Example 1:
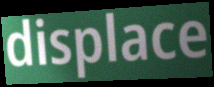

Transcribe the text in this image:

displace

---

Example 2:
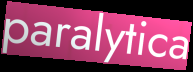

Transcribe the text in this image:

paralytica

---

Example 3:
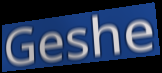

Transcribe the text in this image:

Geshe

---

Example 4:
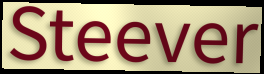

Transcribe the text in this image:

Steever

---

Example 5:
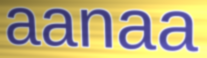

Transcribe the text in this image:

aanaa